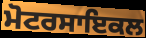
ਮੋਟਰਸਾਇਕਲ